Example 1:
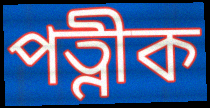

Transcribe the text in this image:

পত্নীক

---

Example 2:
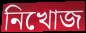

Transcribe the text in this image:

নিখোজ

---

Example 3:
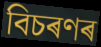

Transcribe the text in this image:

বিচৰণৰ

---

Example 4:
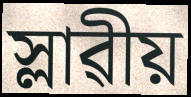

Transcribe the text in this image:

স্লাৱীয়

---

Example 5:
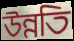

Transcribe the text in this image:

উন্নতি